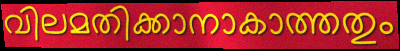
വിലമതിക്കാനാകാത്തതും